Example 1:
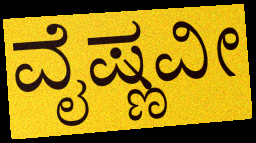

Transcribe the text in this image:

ವೈಷ್ಣವೀ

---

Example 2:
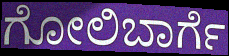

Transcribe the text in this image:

ಗೋಲಿಬಾರ್ಗೆ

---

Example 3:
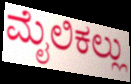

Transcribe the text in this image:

ಮೈಲಿಕಲ್ಲು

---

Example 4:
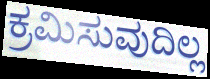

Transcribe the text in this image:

ಕ್ರಮಿಸುವುದಿಲ್ಲ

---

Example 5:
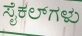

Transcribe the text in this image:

ಸೈಕಲ್‌ಗಳು